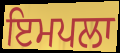
ਇਮਪਲਾ